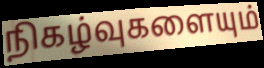
நிகழ்வுகளையும்